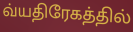
வ்யதிரேகத்தில்